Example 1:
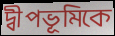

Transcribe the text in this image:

দ্বীপভূমিকে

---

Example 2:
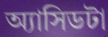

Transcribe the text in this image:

অ্যাসিডটা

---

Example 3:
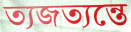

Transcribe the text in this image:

ত্যজত্যন্তে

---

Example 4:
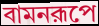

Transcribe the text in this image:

বামনরূপে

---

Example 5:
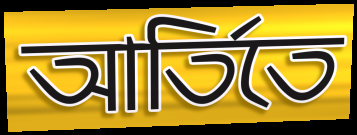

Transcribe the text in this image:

আর্তিতে